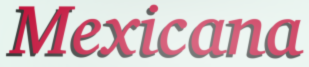
Mexicana